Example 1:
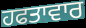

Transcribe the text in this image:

ਹਫਤਾਵਾਰ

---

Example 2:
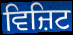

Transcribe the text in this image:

ਵਿਜ਼ਿਟ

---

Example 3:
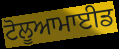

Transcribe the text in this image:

ਟੋਲੂਆਮਾਈਡ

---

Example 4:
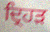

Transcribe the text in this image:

ਦ੍ਰਿਹੜ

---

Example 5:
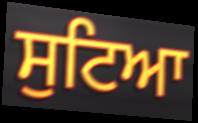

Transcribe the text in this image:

ਸੁਟਿਆ